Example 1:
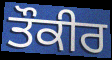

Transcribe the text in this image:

ਤੌਕੀਰ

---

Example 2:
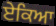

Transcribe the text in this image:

ਏਕਿਆ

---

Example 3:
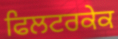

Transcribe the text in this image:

ਫਿਲਟਰਕੇਕ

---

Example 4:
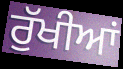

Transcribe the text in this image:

ਰੁੱਖੀਆਂ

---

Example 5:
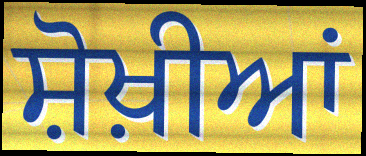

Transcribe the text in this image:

ਸ਼ੋਖ਼ੀਆਂ